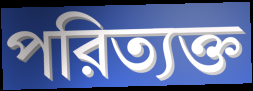
পরিত্যক্ত